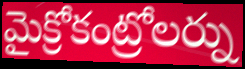
మైక్రోకంట్రోలర్ను